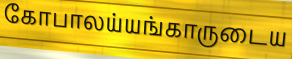
கோபாலய்யங்காருடைய